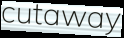
cutaway